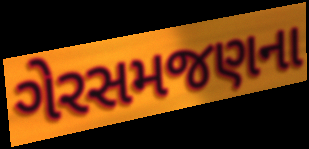
ગેરસમજણના